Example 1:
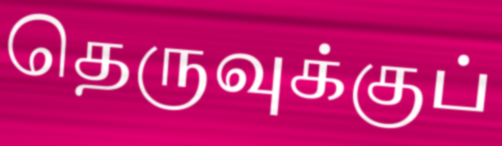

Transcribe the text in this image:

தெருவுக்குப்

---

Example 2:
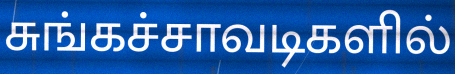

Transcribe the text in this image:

சுங்கச்சாவடிகளில்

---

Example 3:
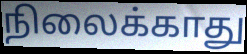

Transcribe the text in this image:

நிலைக்காது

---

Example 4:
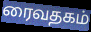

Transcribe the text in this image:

ரைவதகம்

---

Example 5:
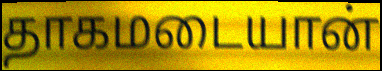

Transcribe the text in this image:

தாகமடையான்